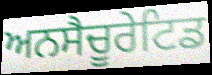
ਅਨਸੈਚੂਰੇਟਿਡ